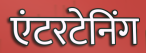
एंटरटेनिंग